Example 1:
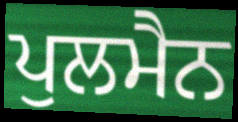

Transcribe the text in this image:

ਪੁਲਮੈਨ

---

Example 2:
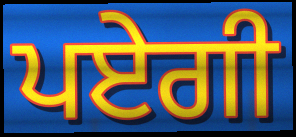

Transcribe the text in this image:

ਪਏਗੀ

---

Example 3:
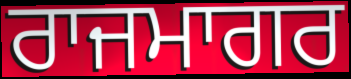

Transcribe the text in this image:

ਰਾਜਮਾਗਰ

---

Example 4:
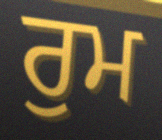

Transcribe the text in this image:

ਰੁਮ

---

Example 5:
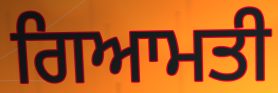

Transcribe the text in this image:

ਗਿਆਮਤੀ